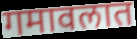
गमावलात